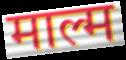
माल्म